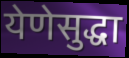
येणेसुद्धा